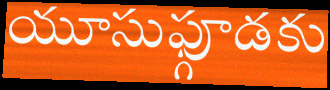
యూసుఫ్గూడకు